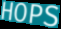
HOPS